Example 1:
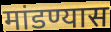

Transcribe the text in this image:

मांडण्यास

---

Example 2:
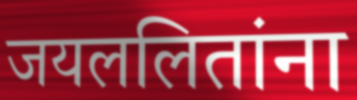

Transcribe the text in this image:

जयललितांना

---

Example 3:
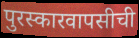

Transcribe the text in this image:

पुरस्कारवापसीची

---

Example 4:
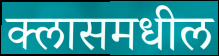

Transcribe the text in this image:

क्लासमधील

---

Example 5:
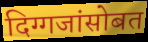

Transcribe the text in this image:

दिग्गजांसोबत